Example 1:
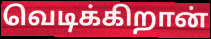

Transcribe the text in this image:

வெடிக்கிறான்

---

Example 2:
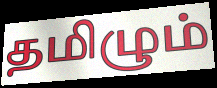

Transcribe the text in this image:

தமிழும்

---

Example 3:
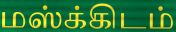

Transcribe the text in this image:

மஸ்க்கிடம்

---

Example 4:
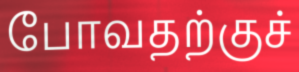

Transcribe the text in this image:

போவதற்குச்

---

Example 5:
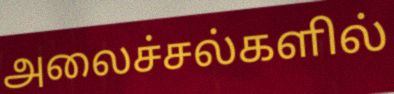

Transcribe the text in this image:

அலைச்சல்களில்